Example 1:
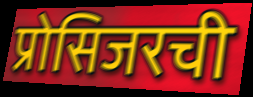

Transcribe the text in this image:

प्रोसिजरची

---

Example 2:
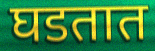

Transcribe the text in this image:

घडतात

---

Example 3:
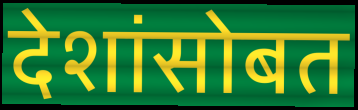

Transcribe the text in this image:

देशांसोबत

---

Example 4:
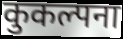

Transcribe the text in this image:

कुकल्पना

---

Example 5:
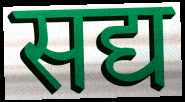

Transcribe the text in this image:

सद्य